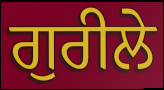
ਗੁਰੀਲੇ